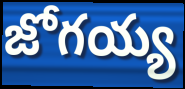
జోగయ్య